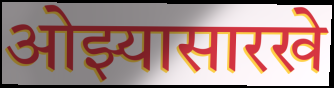
ओझ्यासारखे